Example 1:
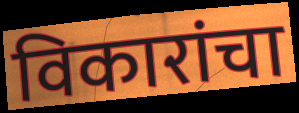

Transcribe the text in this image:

विकारांचा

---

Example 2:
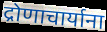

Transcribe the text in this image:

द्रोणाचार्याना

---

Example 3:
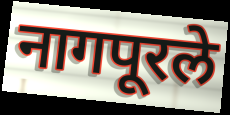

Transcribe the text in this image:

नागपूरले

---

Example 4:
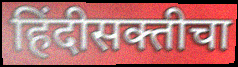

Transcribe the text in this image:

हिंदीसक्तीचा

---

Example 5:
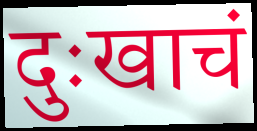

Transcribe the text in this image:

दुःखाचं